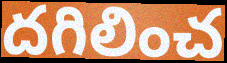
దగిలించ